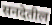
सनदेतील